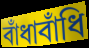
বাঁধাবাঁধি